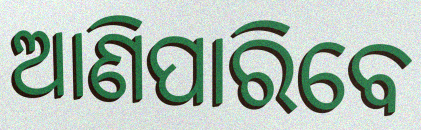
ଆଣିପାରିବେ